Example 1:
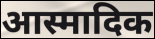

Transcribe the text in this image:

आस्मादिक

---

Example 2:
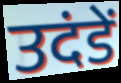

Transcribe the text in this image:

उदंडें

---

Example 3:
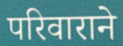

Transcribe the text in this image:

परिवाराने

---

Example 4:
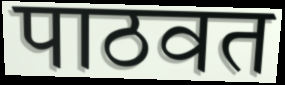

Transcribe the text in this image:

पाठवत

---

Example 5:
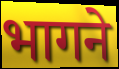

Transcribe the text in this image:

भागने